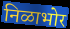
निळाभोर